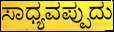
ಸಾಧ್ಯವಪ್ಪುದು